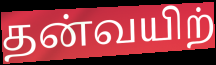
தன்வயிற்